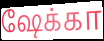
ஷேக்கா